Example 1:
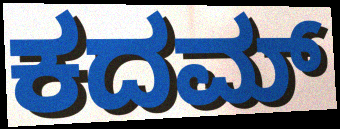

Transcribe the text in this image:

ಕದಮ್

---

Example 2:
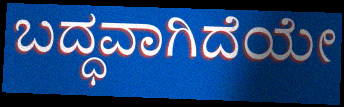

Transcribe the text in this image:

ಬದ್ಧವಾಗಿದೆಯೇ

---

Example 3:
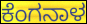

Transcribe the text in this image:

ಕೆಂಗನಾಳ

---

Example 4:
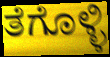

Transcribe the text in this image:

ತೆಗೊಳ್ಳಿ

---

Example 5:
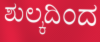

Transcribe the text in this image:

ಶುಲ್ಕದಿಂದ